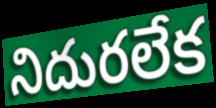
నిదురలేక